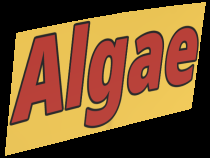
Algae